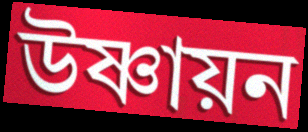
উষ্ণায়ন